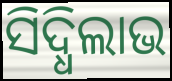
ସିଦ୍ଧିଲାଭ